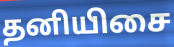
தனியிசை